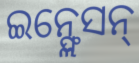
ଇନ୍ଫ୍ଲେସନ୍